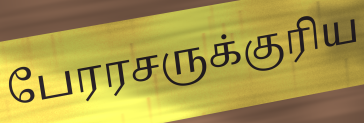
பேரரசருக்குரிய